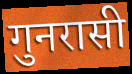
गुनरासी